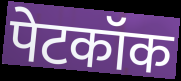
पेटकॉक